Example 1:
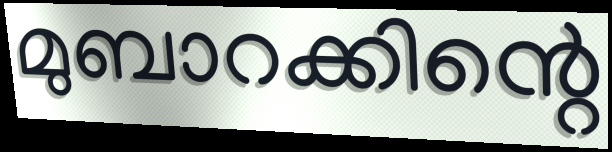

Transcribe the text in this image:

മുബാറക്കിന്റെ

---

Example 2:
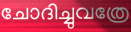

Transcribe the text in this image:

ചോദിച്ചുവത്രേ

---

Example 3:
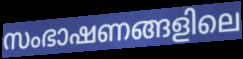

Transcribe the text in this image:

സംഭാഷണങ്ങളിലെ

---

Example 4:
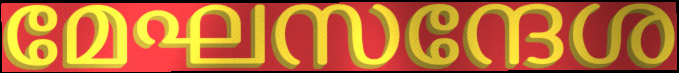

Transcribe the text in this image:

മേഘസന്ദേശ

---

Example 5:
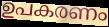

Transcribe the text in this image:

ഉപകരണം